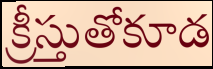
క్రీస్తుతోకూడ